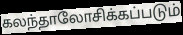
கலந்தாலோசிக்கப்படும்